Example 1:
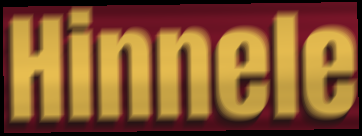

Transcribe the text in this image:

Hinnele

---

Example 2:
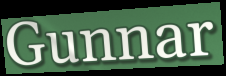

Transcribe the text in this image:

Gunnar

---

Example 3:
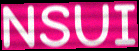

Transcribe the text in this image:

NSUI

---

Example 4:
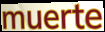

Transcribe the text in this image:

muerte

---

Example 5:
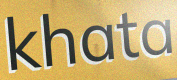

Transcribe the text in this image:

khata